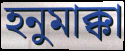
হনুমাক্কা